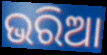
ଭରିଆ